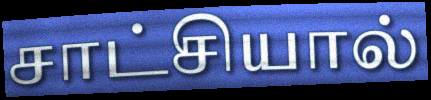
சாட்சியால்